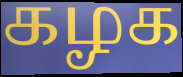
கழக